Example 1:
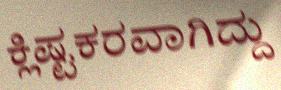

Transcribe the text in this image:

ಕ್ಲಿಷ್ಟಕರವಾಗಿದ್ದು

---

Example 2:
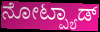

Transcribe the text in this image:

ನೋಟ್ಪ್ಯಾಡ್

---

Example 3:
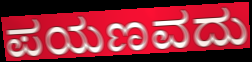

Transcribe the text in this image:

ಪಯಣವದು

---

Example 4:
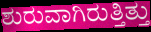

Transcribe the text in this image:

ಶುರುವಾಗಿರುತ್ತಿತ್ತು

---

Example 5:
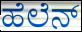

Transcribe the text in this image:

ಹೆಲೆನ್